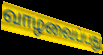
வாழவைப்பது